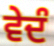
ਵੇਦੰ